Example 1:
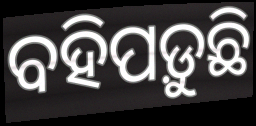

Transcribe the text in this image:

ବହିପଡ଼ୁଛି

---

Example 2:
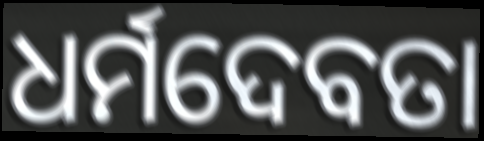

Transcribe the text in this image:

ଧର୍ମଦେବତା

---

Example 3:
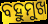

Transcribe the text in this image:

ବହୁମୁଖ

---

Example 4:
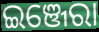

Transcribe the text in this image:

ଇଞ୍ଜେରା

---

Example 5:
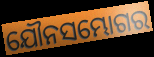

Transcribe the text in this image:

ଯୌନସମ୍ଭୋଗର